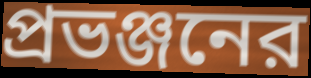
প্রভঞ্জনের